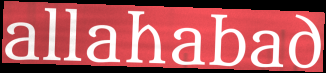
allahabad